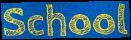
School